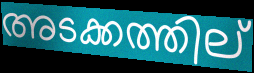
അടക്കത്തില്